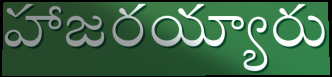
హాజరయ్యారు